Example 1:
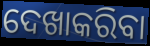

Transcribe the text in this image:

ଦେଖାକରିବା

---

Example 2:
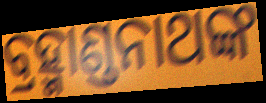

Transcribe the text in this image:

ବ୍ରହ୍ମାଣ୍ଡନାଥଙ୍କ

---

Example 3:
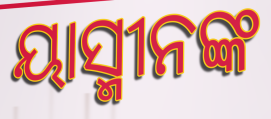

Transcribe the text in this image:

ୟାସ୍ମୀନଙ୍କ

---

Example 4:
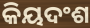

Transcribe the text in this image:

କିୟଦଂଶ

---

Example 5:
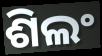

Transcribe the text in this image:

ଶିଲଂ